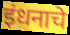
इंधनाचे